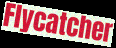
Flycatcher